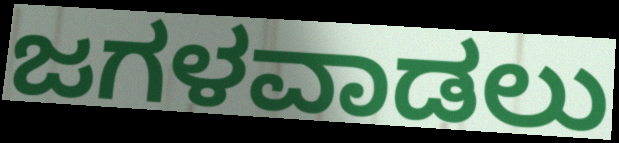
ಜಗಳವಾಡಲು